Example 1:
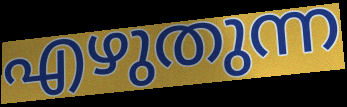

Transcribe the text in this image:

എഴുതുന്ന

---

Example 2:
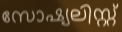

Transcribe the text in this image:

സോഷ്യലിസ്റ്റ്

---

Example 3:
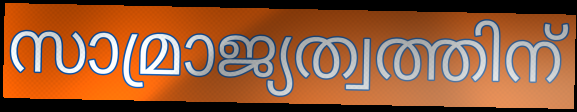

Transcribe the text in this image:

സാമ്രാജ്യത്വത്തിന്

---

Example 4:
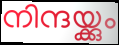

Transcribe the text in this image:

നിന്ദയ്ക്കും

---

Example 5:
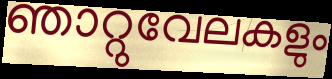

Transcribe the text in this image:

ഞാറ്റുവേലകളും